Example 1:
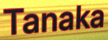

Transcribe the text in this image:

Tanaka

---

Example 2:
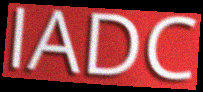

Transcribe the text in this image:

IADC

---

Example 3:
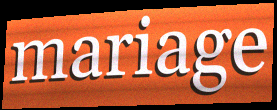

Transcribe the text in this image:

mariage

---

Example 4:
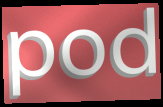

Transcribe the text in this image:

pod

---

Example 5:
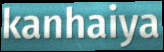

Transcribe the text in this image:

kanhaiya